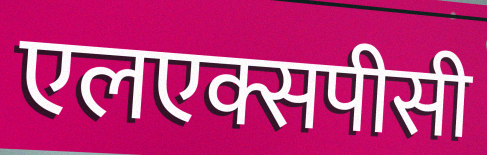
एलएक्सपीसी